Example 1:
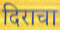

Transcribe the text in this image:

दिराचा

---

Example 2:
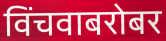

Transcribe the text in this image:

विंचवाबरोबर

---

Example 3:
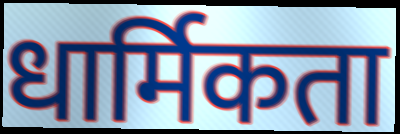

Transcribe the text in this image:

धार्मिकता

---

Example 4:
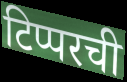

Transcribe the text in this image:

टिप्परची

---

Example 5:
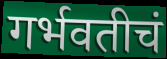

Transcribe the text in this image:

गर्भवतीचं